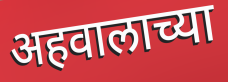
अहवालाच्या